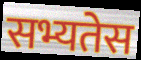
सभ्यतेस